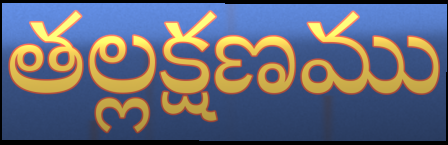
తల్లక్షణము